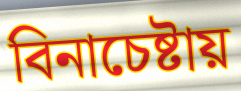
বিনাচেষ্টায়